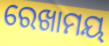
ରେଖାମୟ